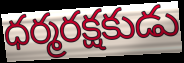
ధర్మరక్షకుడు